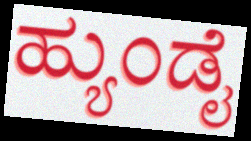
ಹ್ಯುಂಡೈ